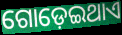
ଗୋଡ଼େଇଥାଏ